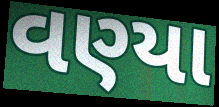
વણ્યા